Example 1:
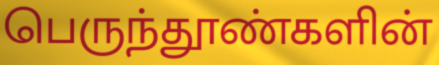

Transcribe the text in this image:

பெருந்தூண்களின்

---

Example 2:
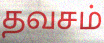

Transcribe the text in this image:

தவசம்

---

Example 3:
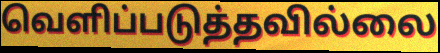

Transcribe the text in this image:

வெளிப்படுத்தவில்லை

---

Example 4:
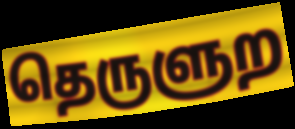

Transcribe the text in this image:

தெருளுற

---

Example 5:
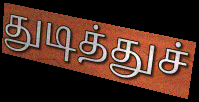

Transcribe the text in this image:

துடித்துச்